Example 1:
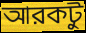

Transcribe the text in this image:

আরকটু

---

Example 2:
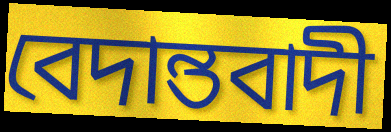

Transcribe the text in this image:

বেদান্তবাদী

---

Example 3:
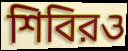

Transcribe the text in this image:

শিবিরও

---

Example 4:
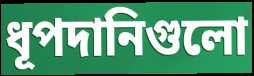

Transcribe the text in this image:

ধূপদানিগুলো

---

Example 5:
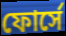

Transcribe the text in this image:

ফোর্সে